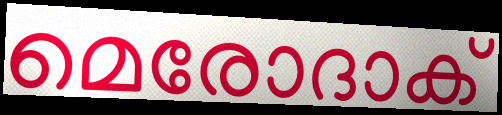
മെരോദാക്